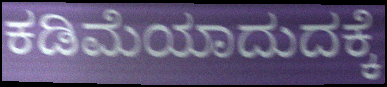
ಕಡಿಮೆಯಾದುದಕ್ಕೆ